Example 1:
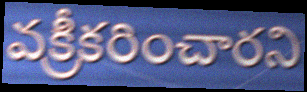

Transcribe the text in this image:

వక్రీకరించారని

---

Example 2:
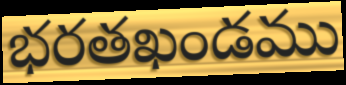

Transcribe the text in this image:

భరతఖండము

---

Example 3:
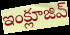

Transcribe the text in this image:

ఇంక్లూజివ్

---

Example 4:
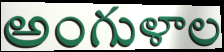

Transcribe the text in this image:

అంగుళాల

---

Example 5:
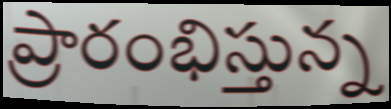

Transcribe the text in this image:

ప్రారంభిస్తున్న